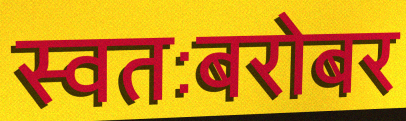
स्वतःबरोबर